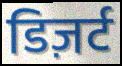
डिज़र्ट